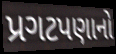
પ્રગટપણાનો